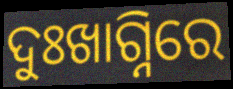
ଦୁଃଖାଗ୍ନିରେ